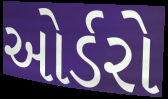
ઓર્ડરો